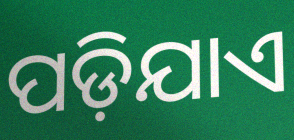
ପଡ଼ିଯାଏ